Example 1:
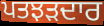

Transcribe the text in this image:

ਪਤਝੜਦਾਰ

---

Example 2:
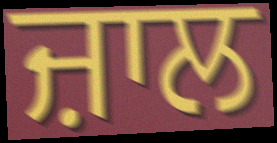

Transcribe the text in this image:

ਜ਼ਾਲ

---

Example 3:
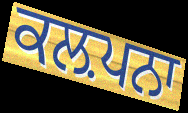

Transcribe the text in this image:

ਕਲ਼ਪਨਾ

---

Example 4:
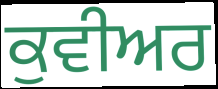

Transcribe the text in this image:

ਕੁਵੀਅਰ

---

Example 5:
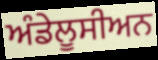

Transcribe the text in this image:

ਅੰਡੇਲੂਸੀਅਨ